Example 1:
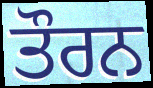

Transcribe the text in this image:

ਤੌਰਨ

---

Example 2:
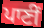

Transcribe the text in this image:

ਪਾਣੀਂ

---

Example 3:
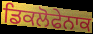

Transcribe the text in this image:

ਡਿਕਲੋਫੇਨਾਕ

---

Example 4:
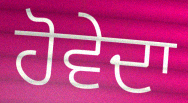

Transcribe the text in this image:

ਹੋਵੇਦਾ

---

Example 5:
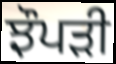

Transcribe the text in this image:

ਝੌਪੜੀ